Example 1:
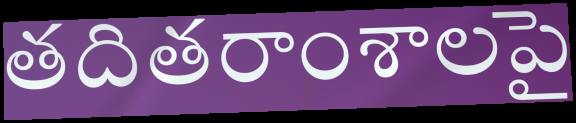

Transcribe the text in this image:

తదితరాంశాలపై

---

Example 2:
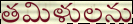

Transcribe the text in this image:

తమిళులను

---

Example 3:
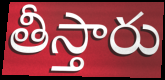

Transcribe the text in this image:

తీస్తారు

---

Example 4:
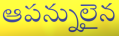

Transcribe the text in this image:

ఆపన్నులైన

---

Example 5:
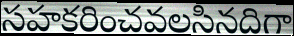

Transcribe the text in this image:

సహకరించవలసినదిగా